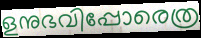
ളനുഭവിപ്പോരെത്ര